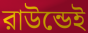
রাউন্ডেই